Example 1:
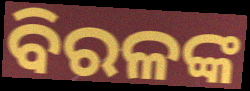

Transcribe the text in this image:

ବିରଳଙ୍କ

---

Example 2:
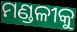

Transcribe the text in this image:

ମଣ୍ଡଳୀକୁ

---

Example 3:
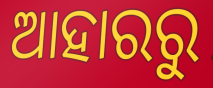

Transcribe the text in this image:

ଆହାରରୁ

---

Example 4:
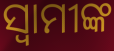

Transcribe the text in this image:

ସ୍ଵାମୀଙ୍କ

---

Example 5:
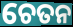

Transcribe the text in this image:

ଚେତନ